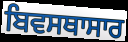
ਬਿਵਸਥਾਸਾਰ